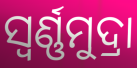
ସ୍ୱର୍ଣ୍ଣମୁଦ୍ରା